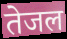
तेजल